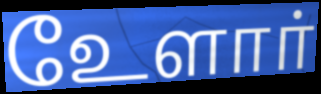
உேளார்